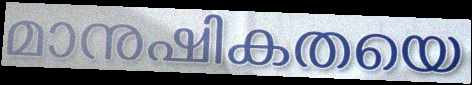
മാനുഷികതയെ